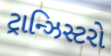
ટ્રાન્ઝિસ્ટરો